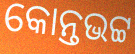
କୋନ୍ତଭଟ୍ଟ